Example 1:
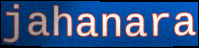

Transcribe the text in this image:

jahanara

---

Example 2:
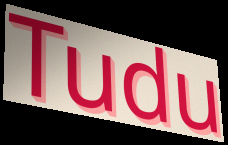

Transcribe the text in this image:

Tudu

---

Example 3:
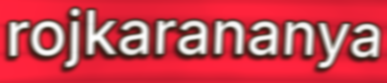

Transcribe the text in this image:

rojkarananya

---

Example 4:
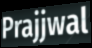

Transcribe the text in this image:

Prajjwal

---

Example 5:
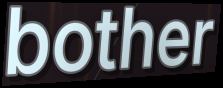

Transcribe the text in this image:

bother